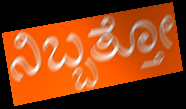
ನಿಬ್ಬತ್ತೋ